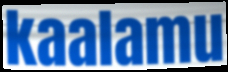
kaalamu